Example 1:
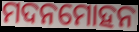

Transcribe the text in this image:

ମଦନମୋହନ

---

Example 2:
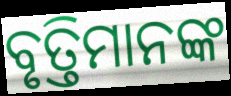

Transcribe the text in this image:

ବୃତ୍ତିମାନଙ୍କ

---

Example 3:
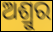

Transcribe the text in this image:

ଅଶ୍ରୁର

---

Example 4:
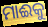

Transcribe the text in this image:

ମାଈକୁ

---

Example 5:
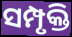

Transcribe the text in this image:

ସମ୍ପୃକ୍ତି